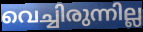
വെച്ചിരുന്നില്ല